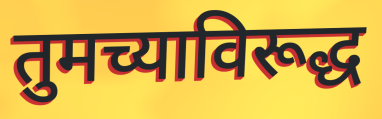
तुमच्याविरूद्ध